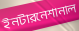
ইনটারনেশানাল